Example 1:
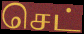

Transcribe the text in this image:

செட்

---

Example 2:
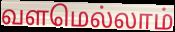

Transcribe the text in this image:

வளமெல்லாம்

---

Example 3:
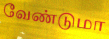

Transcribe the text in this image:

வேண்டுமா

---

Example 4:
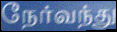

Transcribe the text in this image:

நேர்வந்து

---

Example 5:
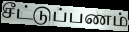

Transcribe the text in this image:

சீட்டுப்பணம்